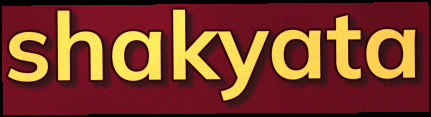
shakyata